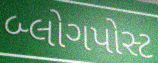
બ્લોગપોસ્ટ